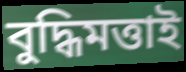
বুদ্ধিমত্তাই